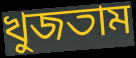
খুজতাম